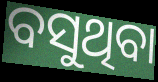
ବସୁଥିବା